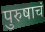
पुरुषाचं